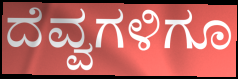
ದೆವ್ವಗಳಿಗೂ